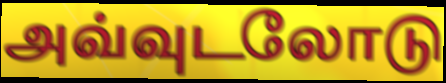
அவ்வுடலோடு